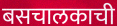
बसचालकाची